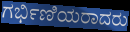
ಗರ್ಭಿಣಿಯರಾದರು